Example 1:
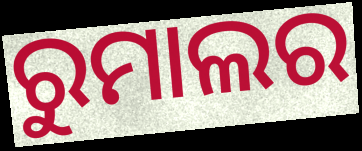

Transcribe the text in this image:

ରୁମାଲର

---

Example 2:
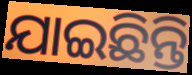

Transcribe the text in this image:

ଯାଇଛିନ୍ତି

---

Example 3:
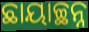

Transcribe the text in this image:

ଛାୟାଚ୍ଛନ୍ନ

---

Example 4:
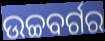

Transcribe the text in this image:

ଉଚ୍ଚବର୍ଗର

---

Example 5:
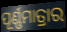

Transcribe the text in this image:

ପୂର୍ଣ୍ଣମାତ୍ରାର